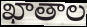
ఖాతాల